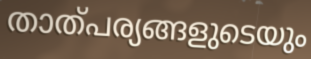
താത്പര്യങ്ങളുടെയും